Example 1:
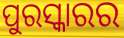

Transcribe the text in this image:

ପୁରସ୍କାରର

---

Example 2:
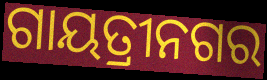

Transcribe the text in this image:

ଗାୟତ୍ରୀନଗର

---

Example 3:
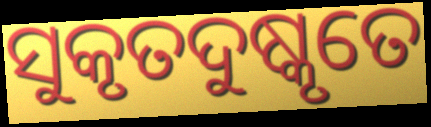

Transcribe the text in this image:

ସୁକୃତଦୁଷ୍କୃତେ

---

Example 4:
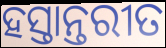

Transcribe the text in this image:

ହସ୍ତାନ୍ତରୀତ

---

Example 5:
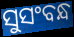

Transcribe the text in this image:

ସୁସଂବନ୍ଧ